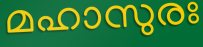
മഹാസുരഃ